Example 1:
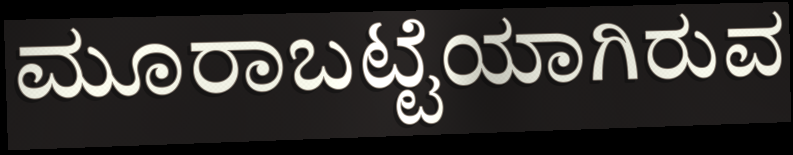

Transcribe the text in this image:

ಮೂರಾಬಟ್ಟೆಯಾಗಿರುವ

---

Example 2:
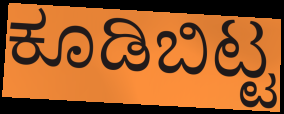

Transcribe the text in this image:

ಕೂಡಿಬಿಟ್ಟ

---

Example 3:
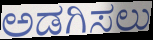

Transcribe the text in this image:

ಅಡಗಿಸಲು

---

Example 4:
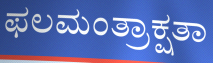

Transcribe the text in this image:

ಫಲಮಂತ್ರಾಕ್ಷತಾ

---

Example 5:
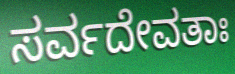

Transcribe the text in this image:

ಸರ್ವದೇವತಾಃ